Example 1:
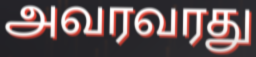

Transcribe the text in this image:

அவரவரது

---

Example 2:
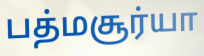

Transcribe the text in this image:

பத்மசூர்யா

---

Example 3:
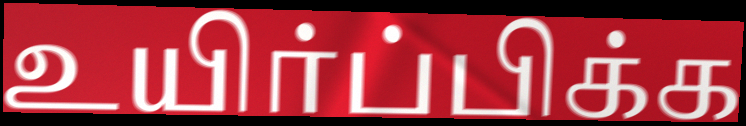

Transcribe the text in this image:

உயிர்ப்பிக்க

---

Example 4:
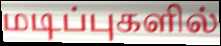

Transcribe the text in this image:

மடிப்புகளில்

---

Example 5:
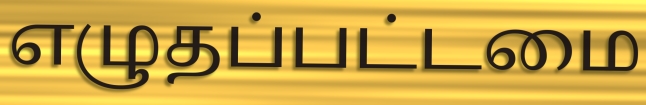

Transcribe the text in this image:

எழுதப்பட்டமை